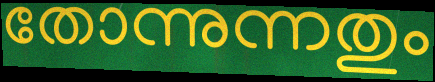
തോന്നുന്നതും